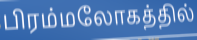
பிரம்மலோகத்தில்